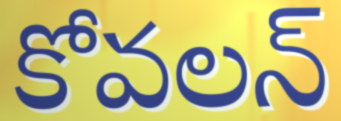
కోవలన్